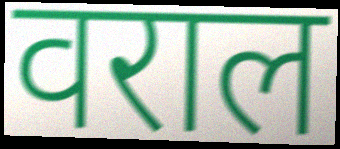
वराल